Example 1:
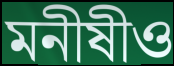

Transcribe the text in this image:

মনীষীও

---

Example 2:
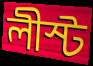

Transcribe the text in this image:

লীস্ট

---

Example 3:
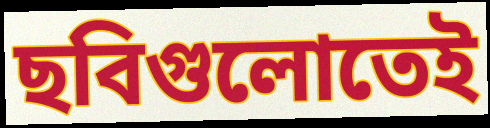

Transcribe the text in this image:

ছবিগুলোতেই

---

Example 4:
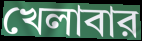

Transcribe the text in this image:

খেলাবার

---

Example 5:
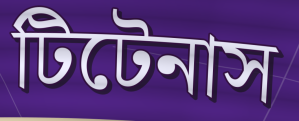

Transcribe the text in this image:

টিটেনাস